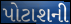
પોટાશની